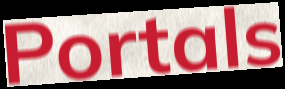
Portals